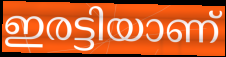
ഇരട്ടിയാണ്